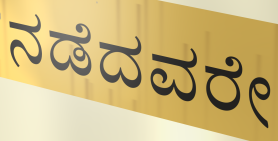
ನಡೆದವರೇ